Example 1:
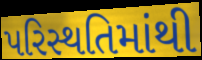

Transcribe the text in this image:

પરિસ્થતિમાંથી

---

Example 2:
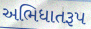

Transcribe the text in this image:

અભિધાતરૂપ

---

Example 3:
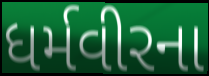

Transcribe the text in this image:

ધર્મવીરના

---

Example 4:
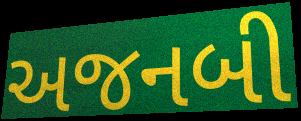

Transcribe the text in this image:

અજનબી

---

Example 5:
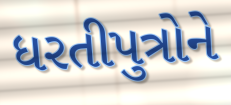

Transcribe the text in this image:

ધરતીપુત્રોને